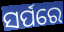
ସର୍ପରେ